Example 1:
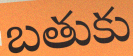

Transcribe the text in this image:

బతుకు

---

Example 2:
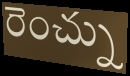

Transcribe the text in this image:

రెంచ్ను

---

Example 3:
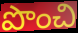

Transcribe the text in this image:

పొంచి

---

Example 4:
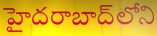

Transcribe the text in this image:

హైదరాబాద్‌లోని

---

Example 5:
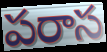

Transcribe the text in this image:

పరాస